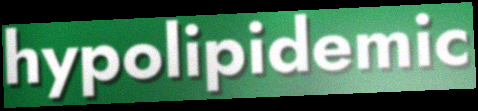
hypolipidemic